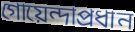
গোয়েন্দাপ্রধান